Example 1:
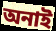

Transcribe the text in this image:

অনাই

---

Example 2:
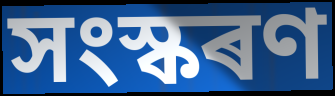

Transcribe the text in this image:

সংস্কৰণ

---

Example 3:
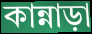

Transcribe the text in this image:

কান্নাড়া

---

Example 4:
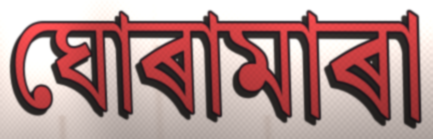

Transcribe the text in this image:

ঘোৰামাৰা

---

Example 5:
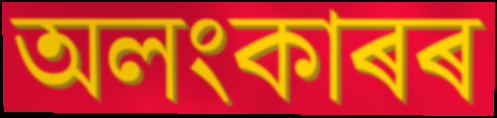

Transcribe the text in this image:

অলংকাৰৰ